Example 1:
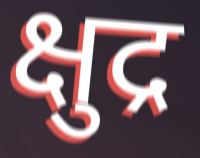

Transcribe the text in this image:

क्षुद्र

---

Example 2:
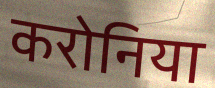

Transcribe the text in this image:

करोनिया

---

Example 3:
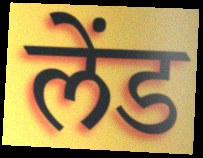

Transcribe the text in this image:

लेंड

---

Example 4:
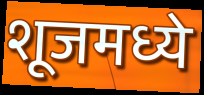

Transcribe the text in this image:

शूजमध्ये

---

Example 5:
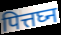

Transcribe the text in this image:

पित्तघ्न